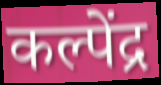
कल्पेंद्र